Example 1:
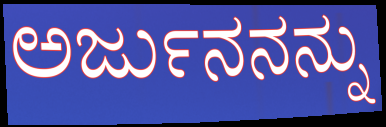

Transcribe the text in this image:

ಅರ್ಜುನನನ್ನು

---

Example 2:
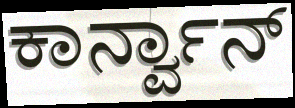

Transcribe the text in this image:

ಕಾರ್ನ್ವಾನ್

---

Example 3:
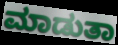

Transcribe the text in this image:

ಮಾಡುತಾ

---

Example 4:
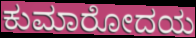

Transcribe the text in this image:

ಕುಮಾರೋದಯ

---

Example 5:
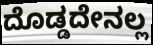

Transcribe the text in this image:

ದೊಡ್ಡದೇನಲ್ಲ